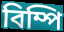
বিম্পি